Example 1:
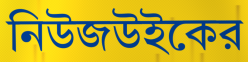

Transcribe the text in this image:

নিউজউইকের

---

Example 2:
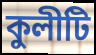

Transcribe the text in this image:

কুলীটি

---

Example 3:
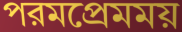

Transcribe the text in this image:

পরমপ্রেমময়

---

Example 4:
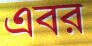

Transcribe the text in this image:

এবর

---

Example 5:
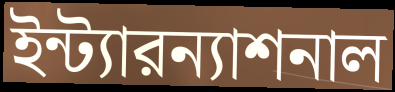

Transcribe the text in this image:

ইন্ট্যারন্যাশনাল